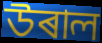
উৰাল